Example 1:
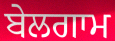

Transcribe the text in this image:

ਬੇਲਗਾਮ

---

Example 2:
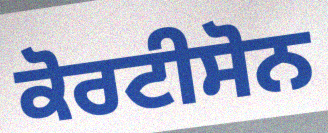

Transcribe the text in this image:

ਕੋਰਟੀਸੋਨ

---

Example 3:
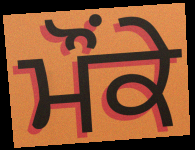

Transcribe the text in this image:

ਮੌੰਕੇ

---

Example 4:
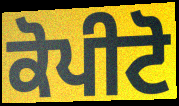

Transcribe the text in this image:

ਕੋਪੀਟੋ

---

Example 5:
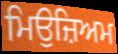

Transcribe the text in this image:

ਮਿਉਜ਼ਿਅਮ